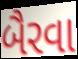
બૈરવા